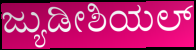
ಜ್ಯುಡೀಶಿಯಲ್